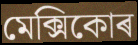
মেক্সিকোৰ